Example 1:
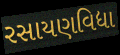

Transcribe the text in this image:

રસાયણવિદ્યા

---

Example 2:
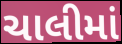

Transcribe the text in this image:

ચાલીમાં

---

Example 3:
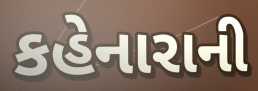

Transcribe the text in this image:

કહેનારાની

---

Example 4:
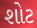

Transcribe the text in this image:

શોટ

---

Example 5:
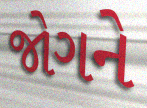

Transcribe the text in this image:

જોગને